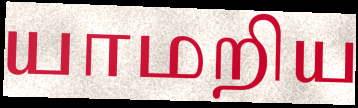
யாமறிய